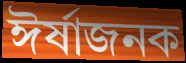
ঈর্ষাজনক